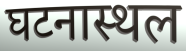
घटनास्थल